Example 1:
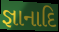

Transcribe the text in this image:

જ્ઞાનાદિ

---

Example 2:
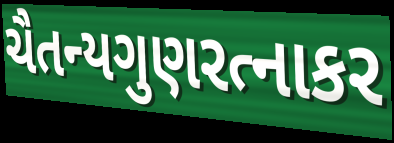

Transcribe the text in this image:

ચૈતન્યગુણરત્નાકર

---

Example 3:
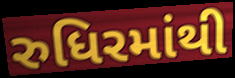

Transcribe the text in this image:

રુધિરમાંથી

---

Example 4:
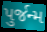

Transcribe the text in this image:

પુર્જન્મ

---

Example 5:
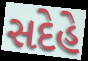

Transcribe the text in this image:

સદેહે